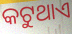
କଟୁଥାଏ